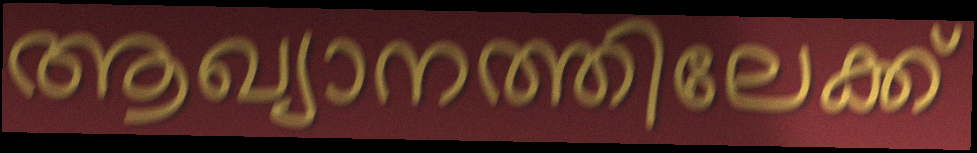
ആഖ്യാനത്തിലേക്ക്